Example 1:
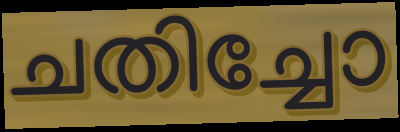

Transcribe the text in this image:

ചതിച്ചോ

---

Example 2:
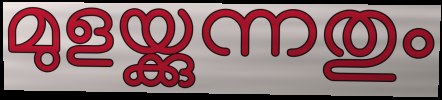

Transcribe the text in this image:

മുളയ്ക്കുന്നതും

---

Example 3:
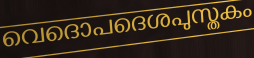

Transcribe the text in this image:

വെദൊപദെശപുസ്തകം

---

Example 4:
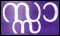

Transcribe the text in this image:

സ്സാ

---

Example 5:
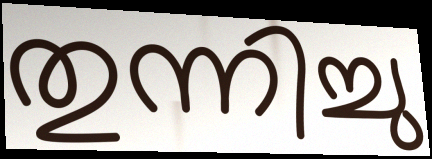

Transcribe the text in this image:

തുന്നിച്ചു